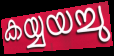
കയ്യയച്ചു